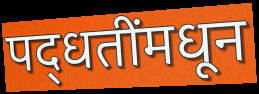
पद्धतींमधून